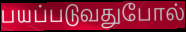
பயப்படுவதுபோல்